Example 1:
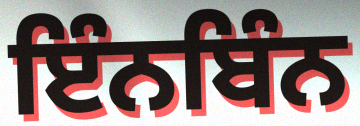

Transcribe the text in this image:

ਇੰਨਬਿੰਨ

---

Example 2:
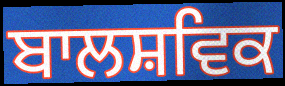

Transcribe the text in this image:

ਬਾਲਸ਼ਵਿਕ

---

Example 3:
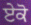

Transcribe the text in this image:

ਏਕੋ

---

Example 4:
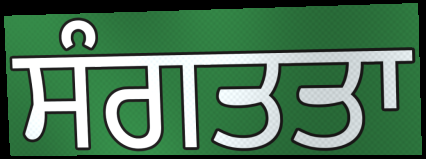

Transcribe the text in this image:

ਸੰਗਤਤਾ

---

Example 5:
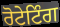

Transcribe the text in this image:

ਰੋਟੇਟਿੰਗ